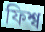
ফিশ্ব